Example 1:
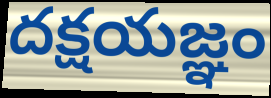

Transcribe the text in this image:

దక్షయజ్ఞం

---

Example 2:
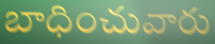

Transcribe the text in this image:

బాధించువారు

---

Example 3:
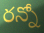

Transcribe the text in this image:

రన్నో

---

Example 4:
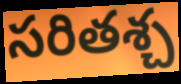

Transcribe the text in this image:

సరితశ్చ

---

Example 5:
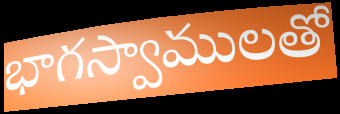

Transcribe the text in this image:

భాగస్వాములతో